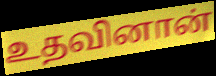
உதவினான்